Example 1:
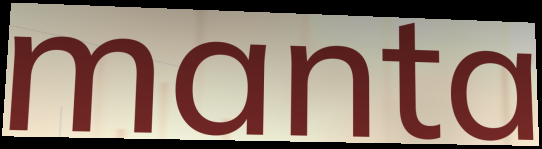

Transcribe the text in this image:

manta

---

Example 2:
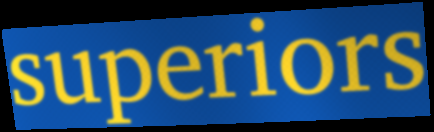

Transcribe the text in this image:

superiors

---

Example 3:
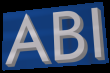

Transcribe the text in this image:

ABI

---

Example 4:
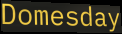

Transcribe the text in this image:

Domesday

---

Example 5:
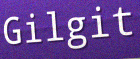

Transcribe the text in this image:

Gilgit